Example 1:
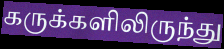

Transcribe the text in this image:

கருக்களிலிருந்து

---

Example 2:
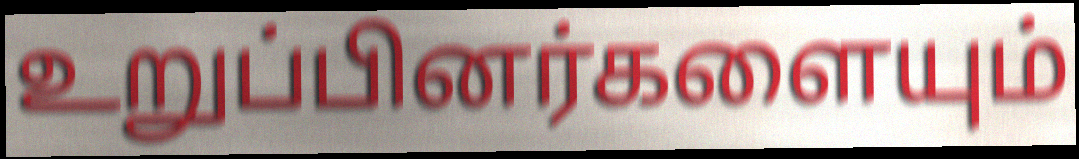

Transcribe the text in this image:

உறுப்பினர்களையும்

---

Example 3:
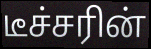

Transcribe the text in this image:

டீச்சரின்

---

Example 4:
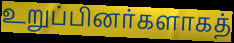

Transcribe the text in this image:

உறுப்பினர்களாகத்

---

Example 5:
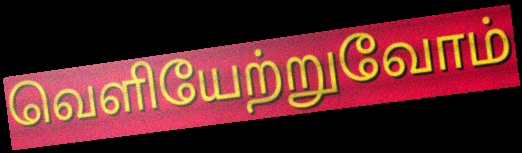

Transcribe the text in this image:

வெளியேற்றுவோம்